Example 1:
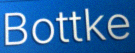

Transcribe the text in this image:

Bottke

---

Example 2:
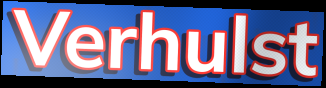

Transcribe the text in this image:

Verhulst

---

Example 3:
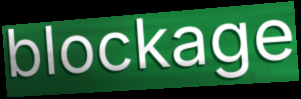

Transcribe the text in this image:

blockage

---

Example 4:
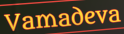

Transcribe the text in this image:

Vamadeva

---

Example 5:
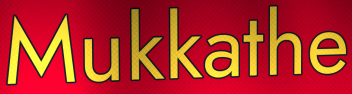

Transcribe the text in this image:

Mukkathe